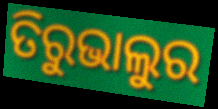
ତିରୁଭାଲୁର